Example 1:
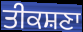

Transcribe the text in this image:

ਤੀਕਸ਼ਣਾ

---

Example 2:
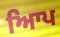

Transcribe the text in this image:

ਆਿਪ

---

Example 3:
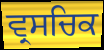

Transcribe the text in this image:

ਵ੍ਰਸਚਿਕ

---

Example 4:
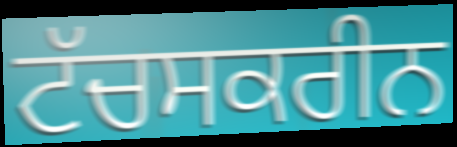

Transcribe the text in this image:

ਟੱਚਸਕਰੀਨ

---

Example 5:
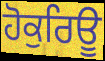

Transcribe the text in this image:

ਹੋਕੁਰਿਊ